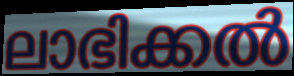
ലാഭിക്കൽ